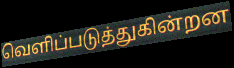
வெளிப்படுத்துகின்றன